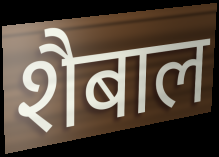
शैबाल